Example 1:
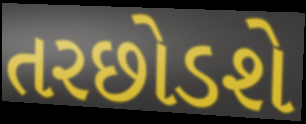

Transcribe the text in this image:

તરછોડશે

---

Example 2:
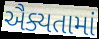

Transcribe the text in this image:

ઐક્યતામાં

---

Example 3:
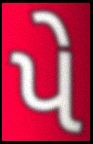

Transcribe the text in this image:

પે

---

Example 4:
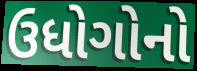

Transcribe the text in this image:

ઉધોગોનો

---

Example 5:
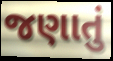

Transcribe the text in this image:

જણાતું